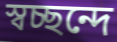
স্বচ্ছন্দে